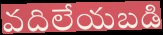
వదిలేయబడి